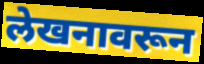
लेखनावरून